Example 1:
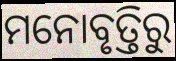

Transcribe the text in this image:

ମନୋବୃତ୍ତିରୁ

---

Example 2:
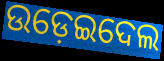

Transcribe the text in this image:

ଉଡ଼େଇଦେଲ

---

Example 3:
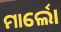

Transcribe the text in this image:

ମାର୍ଲୋ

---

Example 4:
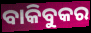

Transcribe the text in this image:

ବାକିବୁକର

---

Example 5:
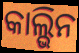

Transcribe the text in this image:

କାଲ୍ଭିନ